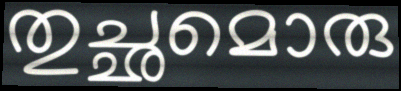
തുച്ഛമൊരു